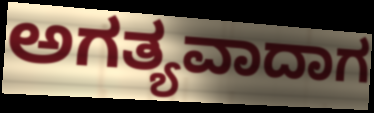
ಅಗತ್ಯವಾದಾಗ